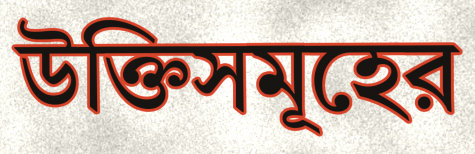
উক্তিসমূহের